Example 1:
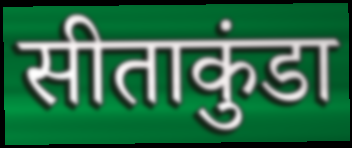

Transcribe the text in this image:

सीताकुंडा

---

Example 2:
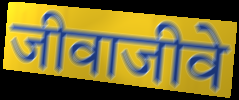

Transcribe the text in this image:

जीवाजीवे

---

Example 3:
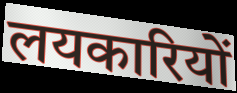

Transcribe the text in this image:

लयकारियों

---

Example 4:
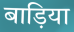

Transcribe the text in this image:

बाड़िया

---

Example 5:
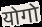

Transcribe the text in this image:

योगो